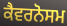
ਕੈਵਰਨੋਸਮ